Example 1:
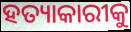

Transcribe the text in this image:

ହତ୍ୟାକାରୀକୁ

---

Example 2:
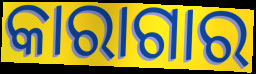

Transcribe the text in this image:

କାରାଗାର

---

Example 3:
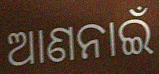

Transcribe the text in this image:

ଆଣନାଇଁ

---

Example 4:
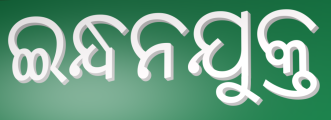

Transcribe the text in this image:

ଇନ୍ଧନଯୁକ୍ତ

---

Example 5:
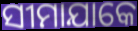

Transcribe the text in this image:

ସୀମାଯାକେ